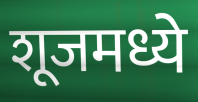
शूजमध्ये